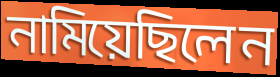
নামিয়েছিলেন